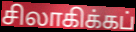
சிலாகிக்கப்